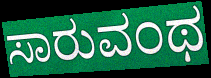
ಸಾರುವಂಥ